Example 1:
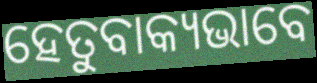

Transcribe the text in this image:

ହେତୁବାକ୍ୟଭାବେ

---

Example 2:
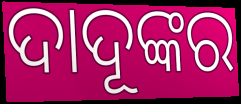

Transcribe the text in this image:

ଦାଦୂଙ୍କର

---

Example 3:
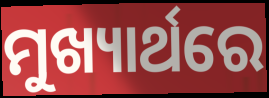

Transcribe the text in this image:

ମୁଖ୍ୟାର୍ଥରେ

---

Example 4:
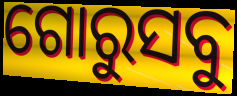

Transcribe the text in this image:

ଗୋରୁସବୁ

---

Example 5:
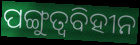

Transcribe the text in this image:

ପଙ୍ଗୁତ୍ୱବିହୀନ